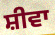
ਸ਼ੀਵਾ